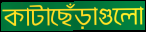
কাটাছেঁড়াগুলো